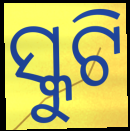
ସ୍କୁଟି